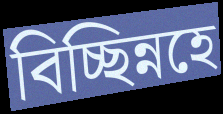
বিচ্ছিন্নহে